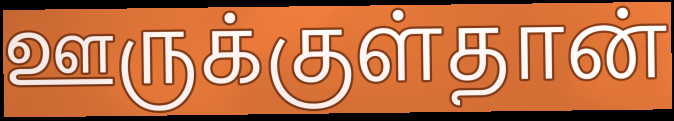
ஊருக்குள்தான்